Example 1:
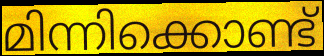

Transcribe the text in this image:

മിന്നിക്കൊണ്ട്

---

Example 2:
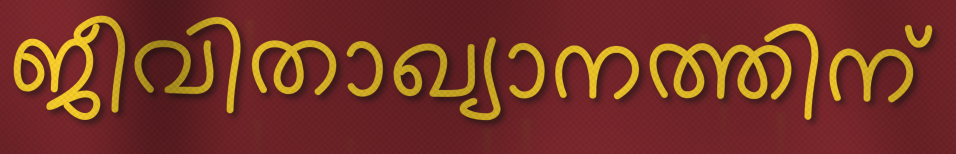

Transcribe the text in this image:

ജീവിതാഖ്യാനത്തിന്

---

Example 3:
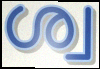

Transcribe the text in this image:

ശ്വ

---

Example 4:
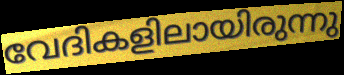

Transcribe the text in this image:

വേദികളിലായിരുന്നു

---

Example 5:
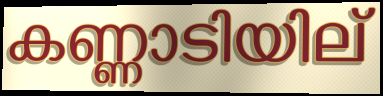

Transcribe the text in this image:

കണ്ണാടിയില്